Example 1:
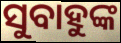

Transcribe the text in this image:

ସୁବାହୁଙ୍କ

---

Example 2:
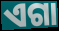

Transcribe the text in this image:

ଏଗା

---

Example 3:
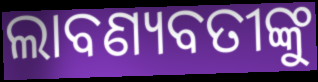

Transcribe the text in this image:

ଲାବଣ୍ୟବତୀଙ୍କୁ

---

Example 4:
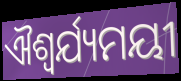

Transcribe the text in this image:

ଐଶ୍ୱର୍ଯ୍ୟମୟୀ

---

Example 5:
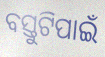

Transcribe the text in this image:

ବସ୍ତୁଟିପାଇଁ